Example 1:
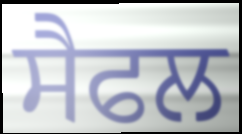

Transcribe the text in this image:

ਸੈਫਲ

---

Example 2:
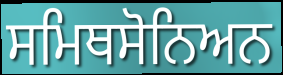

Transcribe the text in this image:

ਸਮਿਥਸੋਨਿਅਨ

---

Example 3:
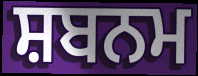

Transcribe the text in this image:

ਸ਼ਬਨਮ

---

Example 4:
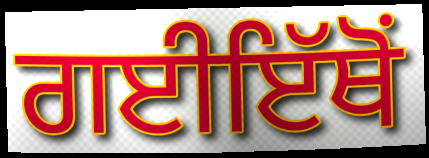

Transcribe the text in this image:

ਗਈਇੱਥੋਂ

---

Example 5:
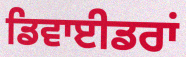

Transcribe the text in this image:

ਡਿਵਾਈਡਰਾਂ